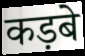
कड़बे